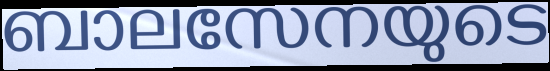
ബാലസേനയുടെ